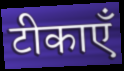
टीकाएँ